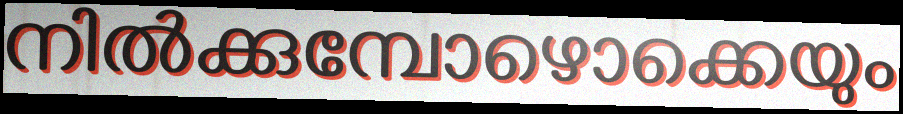
നിൽക്കുമ്പോഴൊക്കെയും